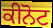
ਕੀਨੋਟ